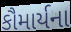
કૌમાર્યના